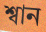
শ্বান